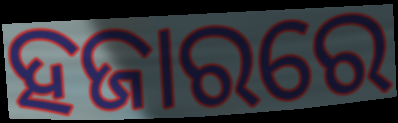
ହଜାରରେ